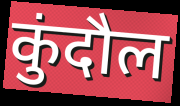
कुंदौल